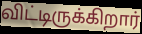
விட்டிருக்கிறார்